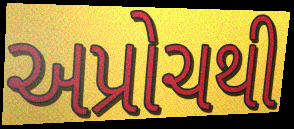
અપ્રોચથી